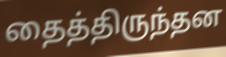
தைத்திருந்தன